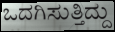
ಒದಗಿಸುತ್ತಿದ್ದು